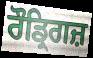
ਰੌਡ੍ਰਿਗਜ਼